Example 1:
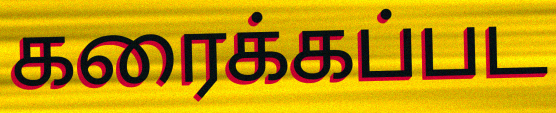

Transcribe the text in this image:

கரைக்கப்பட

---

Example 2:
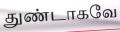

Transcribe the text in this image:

துண்டாகவே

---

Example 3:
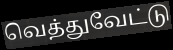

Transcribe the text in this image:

வெத்துவேட்டு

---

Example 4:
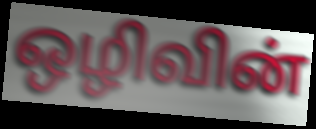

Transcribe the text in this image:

ஒழிவின்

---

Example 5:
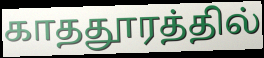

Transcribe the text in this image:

காததூரத்தில்